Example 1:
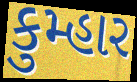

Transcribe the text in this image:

કુમ્હાર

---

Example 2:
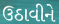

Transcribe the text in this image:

ઉઠાવીને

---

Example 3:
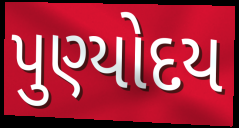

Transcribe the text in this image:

પુણ્યોદય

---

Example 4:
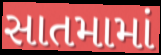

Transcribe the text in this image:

સાતમામાં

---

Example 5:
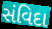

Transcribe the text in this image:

સંવિદા